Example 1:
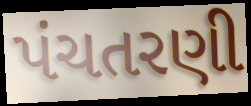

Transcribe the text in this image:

પંચતરણી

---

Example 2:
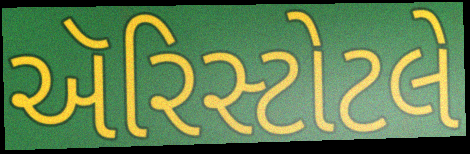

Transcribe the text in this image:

ઍરિસ્ટોટલે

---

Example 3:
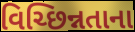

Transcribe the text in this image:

વિચ્છિન્નતાના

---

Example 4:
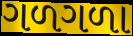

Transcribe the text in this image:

ગળગળા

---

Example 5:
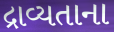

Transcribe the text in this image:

દ્રાવ્યતાના